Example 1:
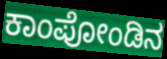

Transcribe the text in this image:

ಕಾಂಪೋಂಡಿನ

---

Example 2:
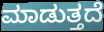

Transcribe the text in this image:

ಮಾಡುತ್ತದೆ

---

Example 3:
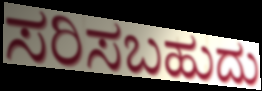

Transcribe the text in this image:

ಸರಿಸಬಹುದು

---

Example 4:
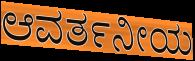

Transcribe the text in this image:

ಆವರ್ತನೀಯ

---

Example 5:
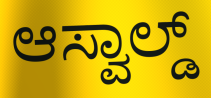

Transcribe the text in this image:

ಆಸ್ವಾಲ್ಡ್